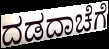
ದಡದಾಚೆಗೆ